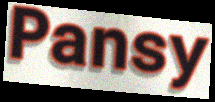
Pansy